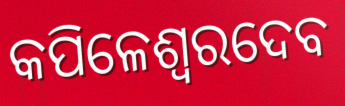
କପିଳେଶ୍ୱରଦେବ